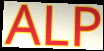
ALP